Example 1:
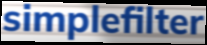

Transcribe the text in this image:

simplefilter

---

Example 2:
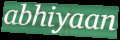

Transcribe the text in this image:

abhiyaan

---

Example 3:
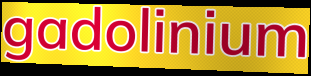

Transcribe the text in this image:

gadolinium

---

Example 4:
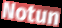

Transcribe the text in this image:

Notun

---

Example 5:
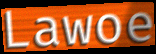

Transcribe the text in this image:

Lawoe